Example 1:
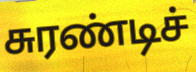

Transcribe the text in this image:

சுரண்டிச்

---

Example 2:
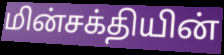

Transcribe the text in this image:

மின்சக்தியின்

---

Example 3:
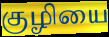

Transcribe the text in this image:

குழியை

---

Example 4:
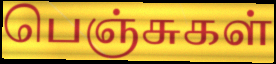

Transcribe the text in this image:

பெஞ்சுகள்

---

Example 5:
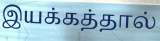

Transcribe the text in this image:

இயக்கத்தால்